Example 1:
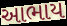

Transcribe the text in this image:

આભાય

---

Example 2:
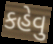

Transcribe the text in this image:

કહેવુ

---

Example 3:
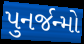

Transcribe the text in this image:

પુનર્જન્મો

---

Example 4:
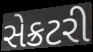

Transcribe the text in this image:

સેક્રટરી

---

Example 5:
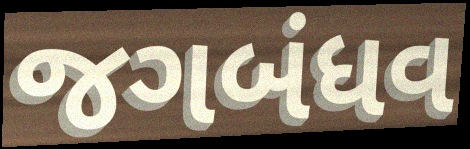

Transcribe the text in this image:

જગબંધવ